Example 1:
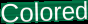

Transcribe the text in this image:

Colored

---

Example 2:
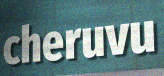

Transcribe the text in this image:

cheruvu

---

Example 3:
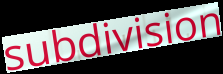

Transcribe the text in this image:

subdivision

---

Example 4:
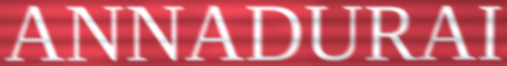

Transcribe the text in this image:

ANNADURAI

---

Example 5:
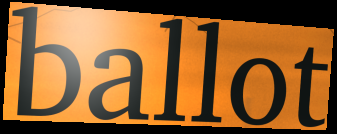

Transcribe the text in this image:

ballot